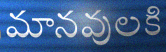
మానవులకి